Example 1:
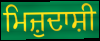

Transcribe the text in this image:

ਮਿਜ਼ੁਦਾਸ਼ੀ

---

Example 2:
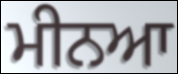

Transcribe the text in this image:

ਮੀਨਆ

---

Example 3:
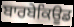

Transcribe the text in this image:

ਬਾਰਬੇਕਿਊਡ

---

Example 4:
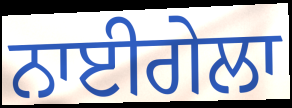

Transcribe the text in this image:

ਨਾਈਗੇਲਾ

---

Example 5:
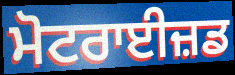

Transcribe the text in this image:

ਮੋਟਰਾਈਜ਼ਡ